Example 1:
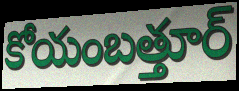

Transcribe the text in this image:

కోయంబత్తూర్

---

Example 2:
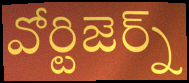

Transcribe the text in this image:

వోర్టిజెర్న్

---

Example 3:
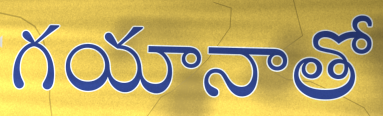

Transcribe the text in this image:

గయానాతో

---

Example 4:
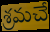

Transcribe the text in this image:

శ్రమచే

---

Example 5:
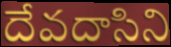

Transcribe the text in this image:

దేవదాసిని